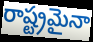
రాష్ట్రమైనా